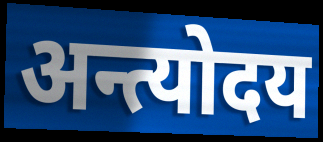
अन्त्योदय